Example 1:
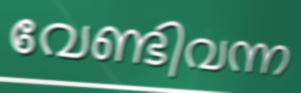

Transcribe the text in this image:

വേണ്ടിവന്ന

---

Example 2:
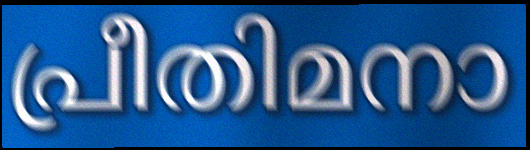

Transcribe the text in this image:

പ്രീതിമനാ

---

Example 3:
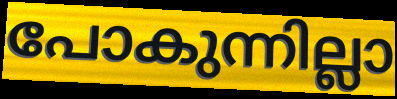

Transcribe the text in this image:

പോകുന്നില്ലാ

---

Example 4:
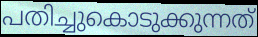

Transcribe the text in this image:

പതിച്ചുകൊടുക്കുന്നത്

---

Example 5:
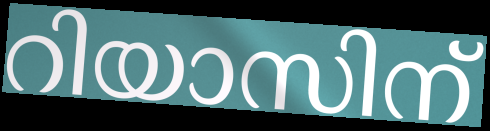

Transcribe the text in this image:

റിയാസിന്